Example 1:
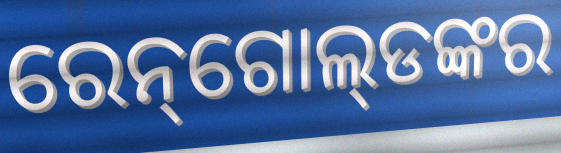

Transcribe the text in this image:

ରେନ୍‌ଗୋଲ୍‌ଡଙ୍କର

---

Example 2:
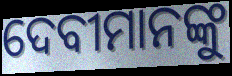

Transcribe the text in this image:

ଦେବୀମାନଙ୍କୁ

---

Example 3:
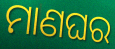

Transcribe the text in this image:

ମାଣଘର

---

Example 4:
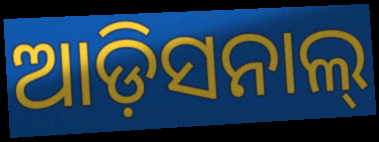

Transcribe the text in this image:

ଆଡ଼ିସନାଲ୍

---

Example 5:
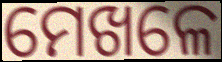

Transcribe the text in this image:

ମେଖଳେ